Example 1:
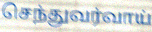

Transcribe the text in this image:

செந்துவர்வாய்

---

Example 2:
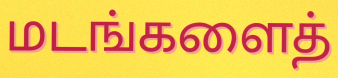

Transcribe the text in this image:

மடங்களைத்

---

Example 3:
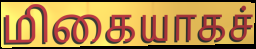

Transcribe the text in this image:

மிகையாகச்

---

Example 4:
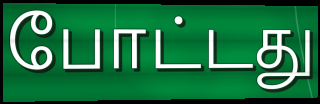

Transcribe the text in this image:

போட்டது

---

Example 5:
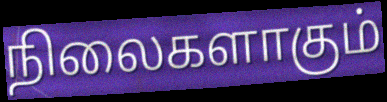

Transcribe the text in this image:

நிலைகளாகும்